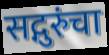
सद्गुरुंचा